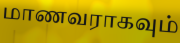
மாணவராகவும்